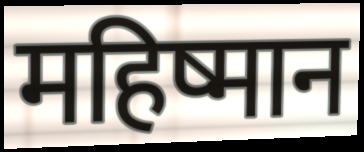
महिष्मान